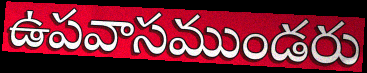
ఉపవాసముండరు